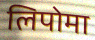
लिपोमा